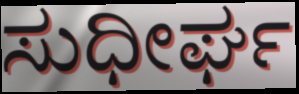
ಸುಧೀರ್ಘ